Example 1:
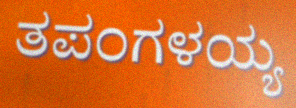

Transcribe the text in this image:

ತಪಂಗಳಯ್ಯ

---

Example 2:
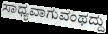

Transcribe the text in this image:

ಸಾಧ್ಯವಾಗುವಂಥದ್ದು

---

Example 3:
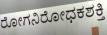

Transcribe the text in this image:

ರೋಗನಿರೋಧಕಶಕ್ತಿ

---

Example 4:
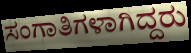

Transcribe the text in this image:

ಸಂಗಾತಿಗಳಾಗಿದ್ದರು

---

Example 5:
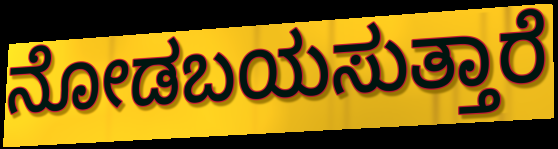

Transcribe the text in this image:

ನೋಡಬಯಸುತ್ತಾರೆ